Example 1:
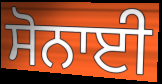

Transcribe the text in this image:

ਸੋਨਾਈ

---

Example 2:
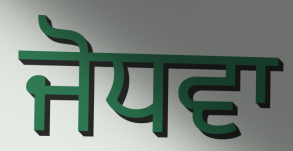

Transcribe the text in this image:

ਜੋਧਵਾ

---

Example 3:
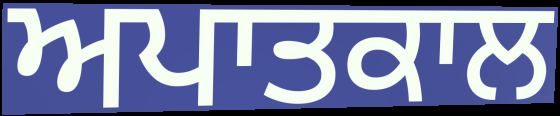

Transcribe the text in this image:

ਅਪਾਤਕਾਲ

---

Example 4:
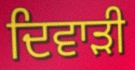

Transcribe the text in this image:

ਦਿਵਾੜੀ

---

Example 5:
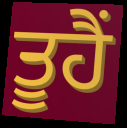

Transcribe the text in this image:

ਤੂਹੈਂ